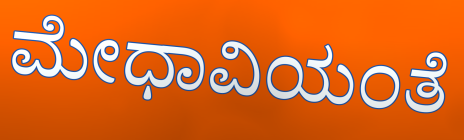
ಮೇಧಾವಿಯಂತೆ